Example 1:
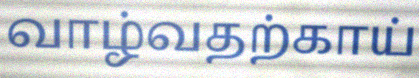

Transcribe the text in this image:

வாழ்வதற்காய்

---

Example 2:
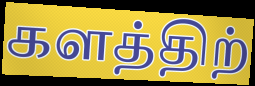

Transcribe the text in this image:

களத்திற்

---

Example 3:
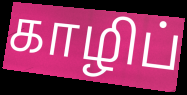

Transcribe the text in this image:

காழிப்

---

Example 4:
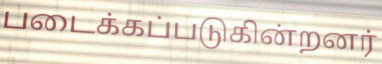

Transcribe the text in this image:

படைக்கப்படுகின்றனர்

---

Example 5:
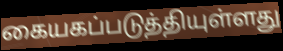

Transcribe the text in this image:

கையகப்படுத்தியுள்ளது